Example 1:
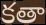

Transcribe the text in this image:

కతా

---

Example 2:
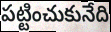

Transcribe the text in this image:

పట్టించుకునేది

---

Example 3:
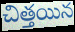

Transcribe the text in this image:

చిత్తయిన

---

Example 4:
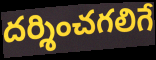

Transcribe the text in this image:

దర్శించగలిగే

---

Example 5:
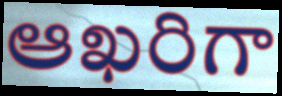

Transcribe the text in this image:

ఆఖరిగా